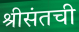
श्रीसंतची